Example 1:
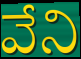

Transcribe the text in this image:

వేని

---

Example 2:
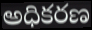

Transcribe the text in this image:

అధికరణ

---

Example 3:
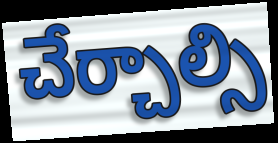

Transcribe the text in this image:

చేర్చాల్సి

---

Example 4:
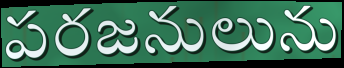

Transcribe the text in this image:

పరజనులును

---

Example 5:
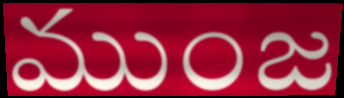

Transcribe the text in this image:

ముంజ